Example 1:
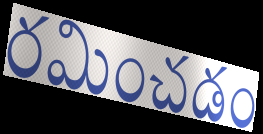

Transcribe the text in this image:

రమించడం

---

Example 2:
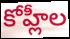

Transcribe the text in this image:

కోహ్లీల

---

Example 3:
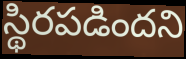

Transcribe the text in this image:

స్థిరపడిందని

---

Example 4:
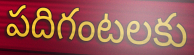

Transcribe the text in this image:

పదిగంటలకు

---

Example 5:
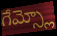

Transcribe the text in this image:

గేమ్స్లో